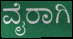
ವೈರಾಗಿ